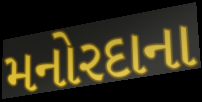
મનોરદાના